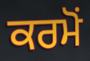
ਕਰਮੋਂ